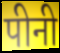
पीनी